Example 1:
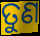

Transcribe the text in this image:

ତୁଣ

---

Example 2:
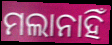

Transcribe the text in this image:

ମଲାନାହିଁ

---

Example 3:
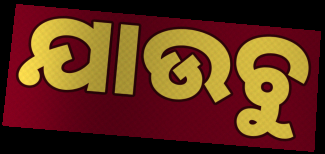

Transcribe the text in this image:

ଯାଉଚୁ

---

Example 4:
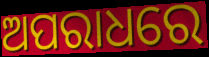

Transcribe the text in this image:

ଅପରାଧରେ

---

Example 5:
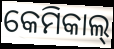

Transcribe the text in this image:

କେମିକାଲ୍